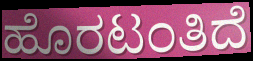
ಹೊರಟಂತಿದೆ